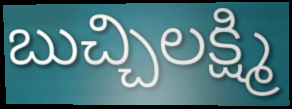
బుచ్చిలక్ష్మి